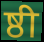
ष्ठी